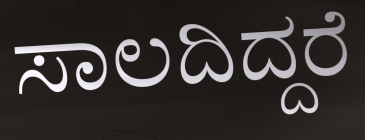
ಸಾಲದಿದ್ದರೆ